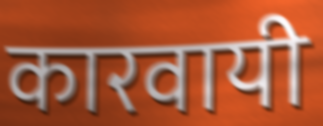
कारवायी